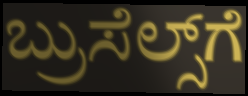
ಬ್ರುಸೆಲ್ಸ್‌ಗೆ